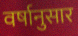
वर्षानुसार